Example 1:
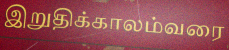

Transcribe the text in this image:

இறுதிக்காலம்வரை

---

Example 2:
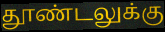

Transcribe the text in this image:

தூண்டலுக்கு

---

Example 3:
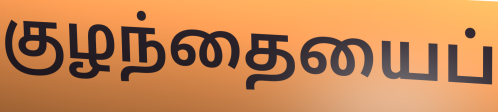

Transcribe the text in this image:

குழந்தையைப்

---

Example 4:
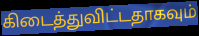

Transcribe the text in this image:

கிடைத்துவிட்டதாகவும்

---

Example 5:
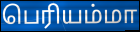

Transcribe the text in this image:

பெரியம்மா